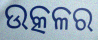
ଉତ୍କଳର